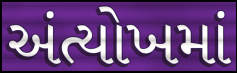
અંત્યોખમાં